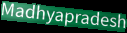
Madhyapradesh